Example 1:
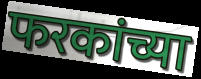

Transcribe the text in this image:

फरकांच्या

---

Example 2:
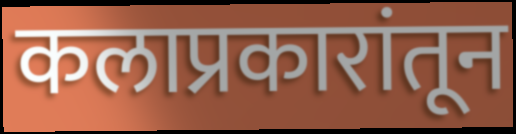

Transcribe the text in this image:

कलाप्रकारांतून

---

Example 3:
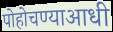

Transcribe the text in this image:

पोहोचण्याआधी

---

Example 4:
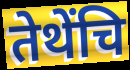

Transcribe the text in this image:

तेथेंचि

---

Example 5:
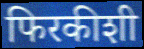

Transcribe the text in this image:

फिरकीशी